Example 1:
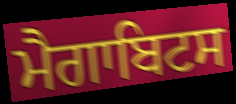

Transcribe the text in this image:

ਮੈਗਾਬਿਟਸ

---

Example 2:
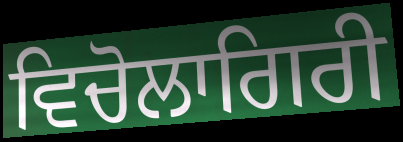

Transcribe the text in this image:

ਵਿਚੋਲਾਗਿਰੀ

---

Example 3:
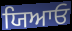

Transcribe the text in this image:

ਯਿਆਓ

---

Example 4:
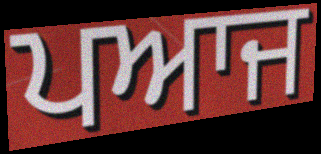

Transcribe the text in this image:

ਪਆਜ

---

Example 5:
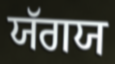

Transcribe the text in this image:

ਯੱਗਯ